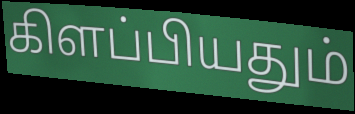
கிளப்பியதும்